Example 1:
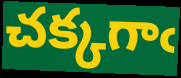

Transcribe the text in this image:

చక్కగాఁ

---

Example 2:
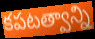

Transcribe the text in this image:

కపటత్వాన్ని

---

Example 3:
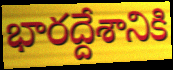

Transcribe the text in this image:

భారద్దేశానికి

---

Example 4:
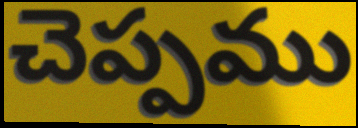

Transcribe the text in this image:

చెప్పము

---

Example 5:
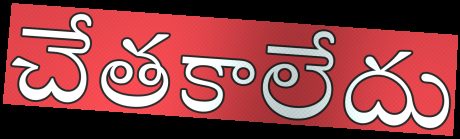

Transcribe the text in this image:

చేతకాలేదు